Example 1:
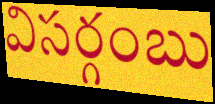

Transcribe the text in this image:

విసర్గంబు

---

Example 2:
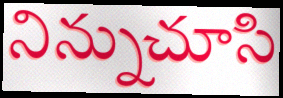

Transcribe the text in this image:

నిన్నుచూసి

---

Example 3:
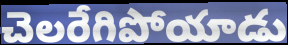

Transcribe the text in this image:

చెలరేగిపోయాడు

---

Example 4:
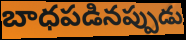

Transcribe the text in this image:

బాధపడినప్పుడు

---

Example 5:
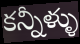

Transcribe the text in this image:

కన్నీళ్ళు